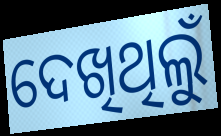
ଦେଖିଥିଲୁଁ